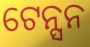
ଟେନ୍ସନ